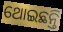
ଥୋଇଛନ୍ତି